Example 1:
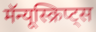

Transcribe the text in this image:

मॅन्यूस्क्रिप्ट्स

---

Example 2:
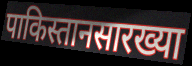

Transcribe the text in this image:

पाकिस्तानसारख्या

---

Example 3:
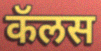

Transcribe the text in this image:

कॅलस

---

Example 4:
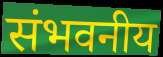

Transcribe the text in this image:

संभवनीय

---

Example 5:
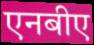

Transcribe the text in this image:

एनबीए